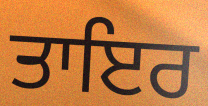
ਤਾਇਰ